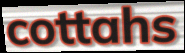
cottahs